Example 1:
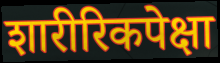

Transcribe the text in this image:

शारीरिकपेक्षा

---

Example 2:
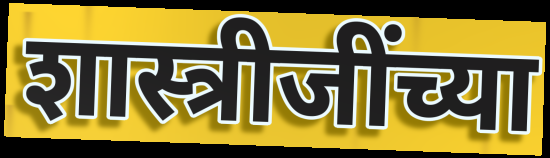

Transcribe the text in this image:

शास्त्रीजींच्या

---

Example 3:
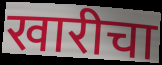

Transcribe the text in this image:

खारीचा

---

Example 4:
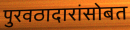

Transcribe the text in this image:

पुरवठादारांसोबत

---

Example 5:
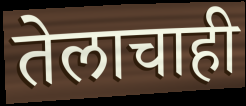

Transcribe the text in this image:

तेलाचाही